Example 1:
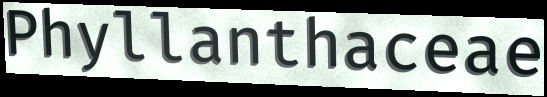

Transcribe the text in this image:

Phyllanthaceae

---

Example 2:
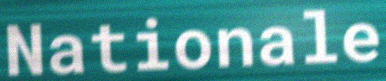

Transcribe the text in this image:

Nationale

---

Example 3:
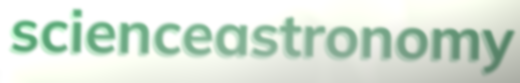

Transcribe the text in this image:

scienceastronomy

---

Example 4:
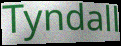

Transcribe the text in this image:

Tyndall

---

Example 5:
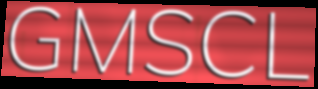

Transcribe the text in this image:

GMSCL